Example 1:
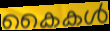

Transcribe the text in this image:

കൈകൾ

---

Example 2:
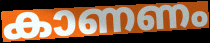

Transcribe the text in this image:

കാണണം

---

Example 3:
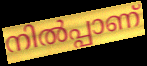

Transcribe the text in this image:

നിൽപ്പാണ്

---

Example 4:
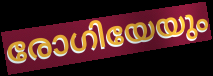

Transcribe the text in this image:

രോഗിയേയും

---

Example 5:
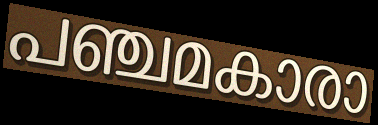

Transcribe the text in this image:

പഞ്ചമകാരാ